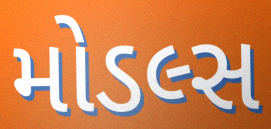
મોડલ્સ